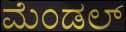
ಮೆಂಡಲ್